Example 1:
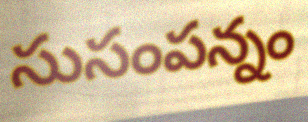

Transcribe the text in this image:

సుసంపన్నం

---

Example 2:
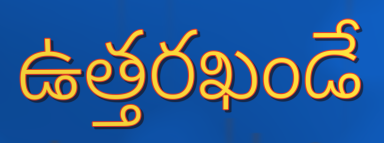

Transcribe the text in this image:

ఉత్తరఖండే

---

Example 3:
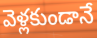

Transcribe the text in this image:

వెళ్లకుండానే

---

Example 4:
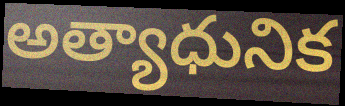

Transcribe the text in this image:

అత్యాధునిక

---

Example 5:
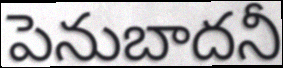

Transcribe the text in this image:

పెనుబాదనీ